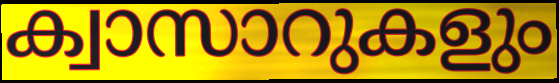
ക്വാസാറുകളും